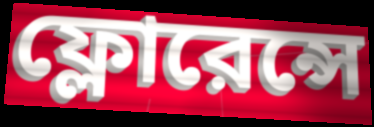
ফ্লোরেন্সে